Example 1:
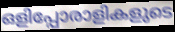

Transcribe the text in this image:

ഒളിപ്പോരാളികളുടെ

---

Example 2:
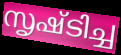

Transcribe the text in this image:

സൃഷ്‌ടിച്ച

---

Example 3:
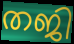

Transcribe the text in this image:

തജി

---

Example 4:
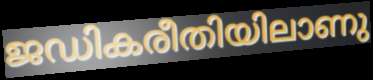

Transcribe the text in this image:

ജഡികരീതിയിലാണു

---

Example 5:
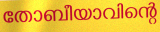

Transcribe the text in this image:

തോബീയാവിന്റെ